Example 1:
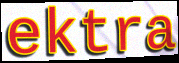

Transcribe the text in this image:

ektra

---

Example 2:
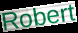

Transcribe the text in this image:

Robert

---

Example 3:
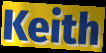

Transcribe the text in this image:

Keith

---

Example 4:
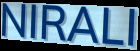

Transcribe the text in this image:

NIRALI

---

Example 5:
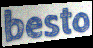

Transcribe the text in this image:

besto